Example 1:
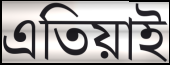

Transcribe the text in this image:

এতিয়াই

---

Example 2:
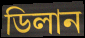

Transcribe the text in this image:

ডিলান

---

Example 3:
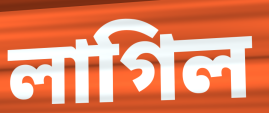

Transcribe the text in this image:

লাগিল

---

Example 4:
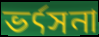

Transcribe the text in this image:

ভৰ্ৎসনা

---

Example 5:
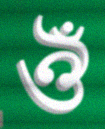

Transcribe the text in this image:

ঔঁ